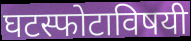
घटस्फोटाविषयी